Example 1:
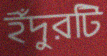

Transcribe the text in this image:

ইঁদুরটি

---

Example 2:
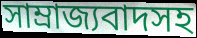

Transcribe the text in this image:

সাম্রাজ্যবাদসহ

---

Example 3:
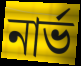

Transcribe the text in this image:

নার্ভ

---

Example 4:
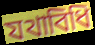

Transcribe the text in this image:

যথাবিধি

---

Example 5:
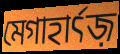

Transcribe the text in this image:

মেগাহার্ৎজ়